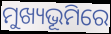
ମୁଖ୍ୟଭୂମିରେ